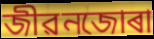
জীৱনজোৰা